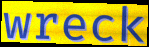
wreck